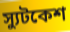
স্যুটকেশ